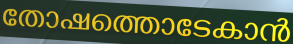
തോഷത്തൊടേകാൻ